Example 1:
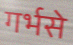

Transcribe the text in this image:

गर्भसे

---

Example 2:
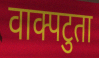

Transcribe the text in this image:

वाक्पटुता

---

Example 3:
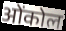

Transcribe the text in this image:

ओंकोल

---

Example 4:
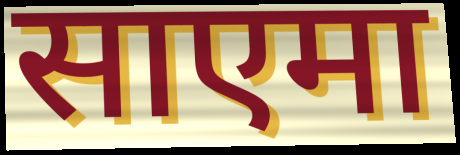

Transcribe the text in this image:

साएमा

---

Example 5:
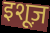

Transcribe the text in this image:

इशूज़